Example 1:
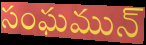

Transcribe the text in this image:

సంఘమున్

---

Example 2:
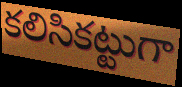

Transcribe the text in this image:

కలిసికట్టుగా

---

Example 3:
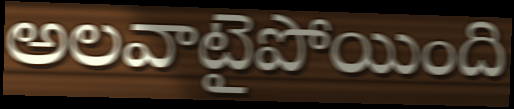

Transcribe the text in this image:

అలవాటైపోయింది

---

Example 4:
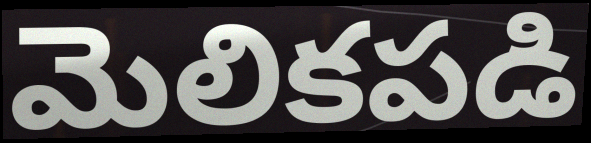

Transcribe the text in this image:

మెలికపడి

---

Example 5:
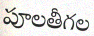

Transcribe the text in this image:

పూలతీగల